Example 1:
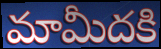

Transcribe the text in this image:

మామీదకి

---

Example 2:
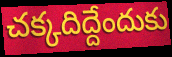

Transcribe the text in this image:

చక్కదిద్దేందుకు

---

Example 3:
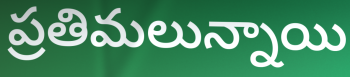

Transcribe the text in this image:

ప్రతిమలున్నాయి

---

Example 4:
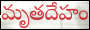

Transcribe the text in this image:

మృతదేహం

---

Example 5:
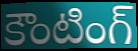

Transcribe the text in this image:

కౌంటింగ్